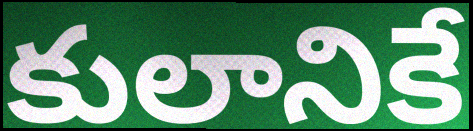
కులానికే